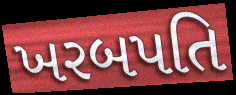
ખરબપતિ